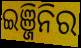
ଇଞ୍ଜିନିର